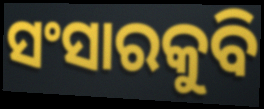
ସଂସାରକୁବି